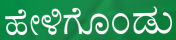
ಹೇಳಿಗೊಂಡು